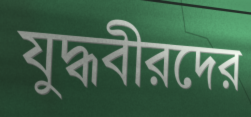
যুদ্ধবীরদের